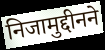
निजामुद्दीनने